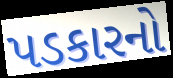
પડકારનો